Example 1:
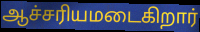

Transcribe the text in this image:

ஆச்சரியமடைகிறார்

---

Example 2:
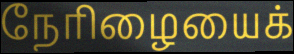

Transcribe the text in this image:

நேரிழையைக்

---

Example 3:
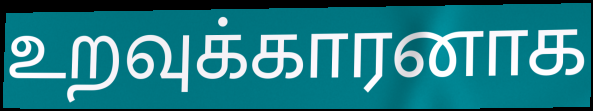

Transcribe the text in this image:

உறவுக்காரனாக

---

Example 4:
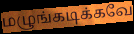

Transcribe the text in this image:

மழுங்கடிக்கவே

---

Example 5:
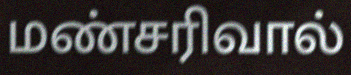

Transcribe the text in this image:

மண்சரிவால்